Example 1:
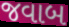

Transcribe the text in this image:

જવાબ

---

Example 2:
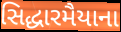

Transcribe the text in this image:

સિદ્ધારમૈયાના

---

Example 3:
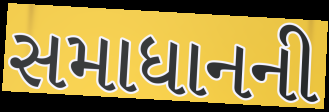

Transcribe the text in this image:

સમાધાનની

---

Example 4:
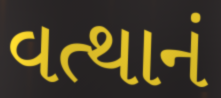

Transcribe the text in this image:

વત્થાનં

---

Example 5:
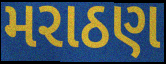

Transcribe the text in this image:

મરાઠણ